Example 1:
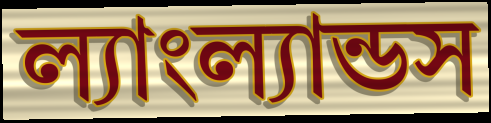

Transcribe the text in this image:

ল্যাংল্যান্ডস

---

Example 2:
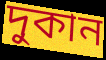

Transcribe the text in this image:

দুকান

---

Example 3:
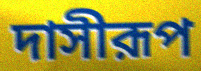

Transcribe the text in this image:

দাসীরূপ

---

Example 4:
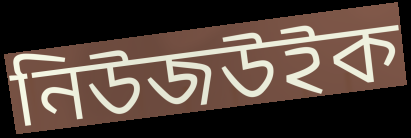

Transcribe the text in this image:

নিউজউইক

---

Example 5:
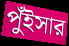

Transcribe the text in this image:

পুঁইসার